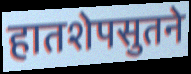
हातशेपसुतने